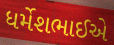
ધર્મેશભાઈએ